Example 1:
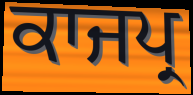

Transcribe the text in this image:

ਕਾਜਪ੍ਰ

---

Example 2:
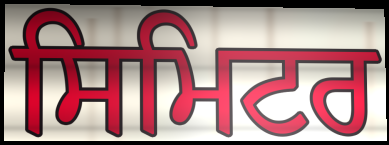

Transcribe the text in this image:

ਸਿਮਿਟਰ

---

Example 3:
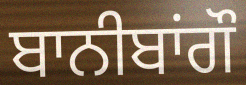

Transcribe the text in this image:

ਬਾਨੀਬਾਂਗੌ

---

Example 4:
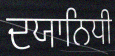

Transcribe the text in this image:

ਦਯਾਨਿਧੀ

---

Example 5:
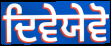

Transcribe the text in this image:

ਦਿਵੇਯੇਵੋ